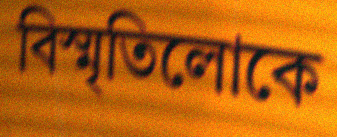
বিস্মৃতিলোকে